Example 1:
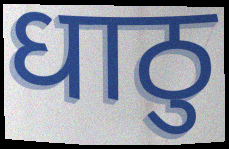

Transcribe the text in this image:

धाठु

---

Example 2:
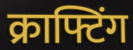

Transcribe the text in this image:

क्राफ्टिंग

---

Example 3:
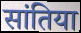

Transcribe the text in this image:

सांतिया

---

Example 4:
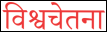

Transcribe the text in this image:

विश्वचेतना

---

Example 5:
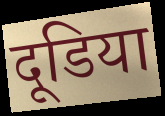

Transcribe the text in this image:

दूडिया